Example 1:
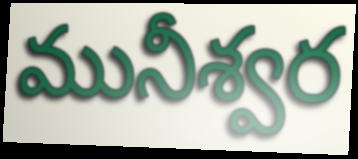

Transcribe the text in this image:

మునీశ్వర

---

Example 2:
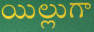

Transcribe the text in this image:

యిల్లుగా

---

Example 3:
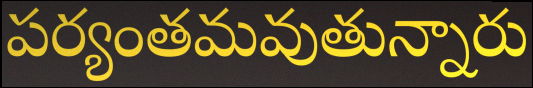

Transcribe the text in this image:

పర్యంతమవుతున్నారు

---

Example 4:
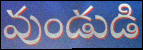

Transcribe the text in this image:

వుండుడి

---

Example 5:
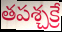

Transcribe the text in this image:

తపశ్చక్రే